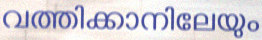
വത്തിക്കാനിലേയും